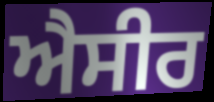
ਐਸੀਰ